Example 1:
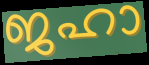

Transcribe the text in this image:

ജഹാ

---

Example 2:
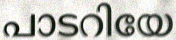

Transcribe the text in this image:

പാടറിയേ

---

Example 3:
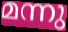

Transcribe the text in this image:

മന്നു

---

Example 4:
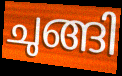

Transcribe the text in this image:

ചുങ്ങി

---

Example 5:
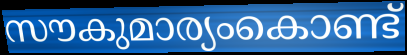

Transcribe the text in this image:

സൗകുമാര്യംകൊണ്ട്